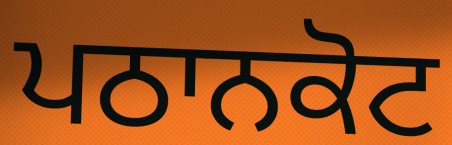
ਪਠਾਨਕੋਟ